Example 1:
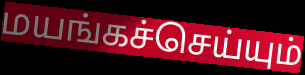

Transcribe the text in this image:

மயங்கச்செய்யும்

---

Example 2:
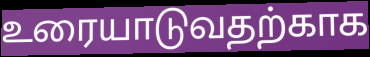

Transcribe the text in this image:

உரையாடுவதற்காக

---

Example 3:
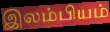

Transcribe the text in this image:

இலம்பியம்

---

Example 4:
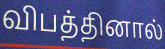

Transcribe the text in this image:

விபத்தினால்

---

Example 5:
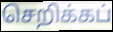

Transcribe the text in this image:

செறிக்கப்